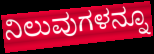
ನಿಲುವುಗಳನ್ನೂ